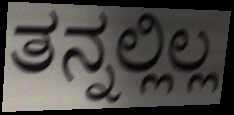
ತನ್ನಲ್ಲಿಲ್ಲ